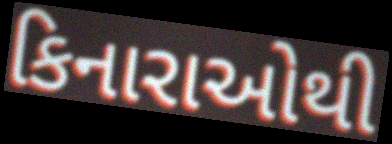
કિનારાઓથી